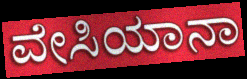
ವೇಸಿಯಾನಾ